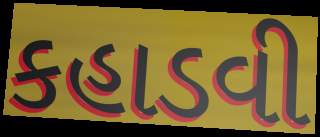
કહાડવી